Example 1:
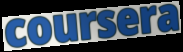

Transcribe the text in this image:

coursera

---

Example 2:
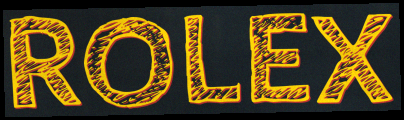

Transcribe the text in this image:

ROLEX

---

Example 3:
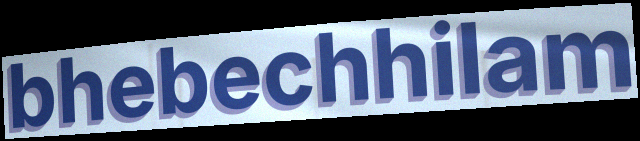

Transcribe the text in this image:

bhebechhilam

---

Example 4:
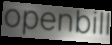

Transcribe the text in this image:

openbill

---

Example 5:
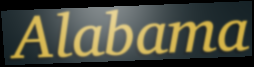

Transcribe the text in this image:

Alabama